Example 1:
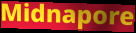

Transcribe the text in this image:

Midnapore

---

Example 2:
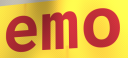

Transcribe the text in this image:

emo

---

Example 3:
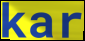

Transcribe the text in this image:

kar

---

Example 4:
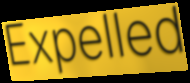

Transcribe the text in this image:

Expelled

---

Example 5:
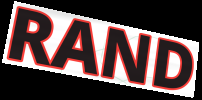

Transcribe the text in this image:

RAND